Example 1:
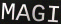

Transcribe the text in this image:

MAGI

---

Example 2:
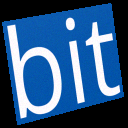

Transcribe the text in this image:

bit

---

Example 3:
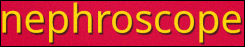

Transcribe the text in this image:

nephroscope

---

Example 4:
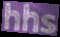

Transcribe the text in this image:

hhs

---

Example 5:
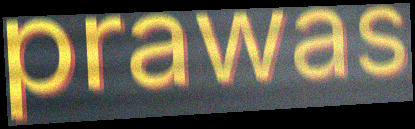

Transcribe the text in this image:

prawas